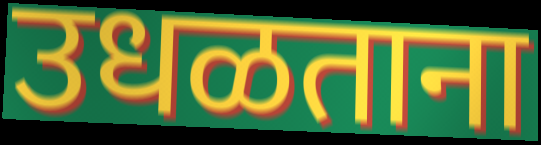
उधळताना